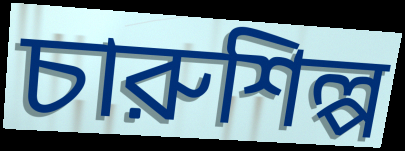
চারুশিল্প